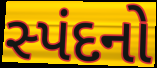
સ્પંદનો